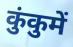
कुंकुमें